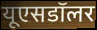
यूएसडॉलर